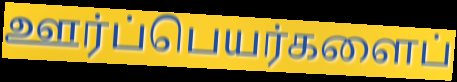
ஊர்ப்பெயர்களைப்